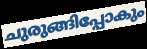
ചുരുങ്ങിപ്പോകും